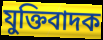
যুক্তিবাদক